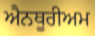
ਐਨਥੂਰੀਅਮ